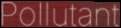
Pollutant